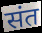
संत